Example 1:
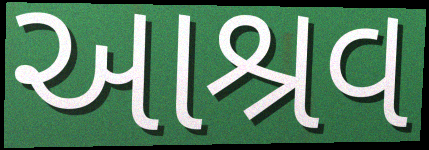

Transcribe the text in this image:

આશ્રવ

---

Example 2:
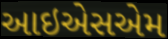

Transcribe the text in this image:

આઇએસએમ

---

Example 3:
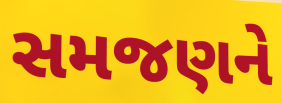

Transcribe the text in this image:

સમજણને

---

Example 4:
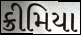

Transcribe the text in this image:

ક્રીમિયા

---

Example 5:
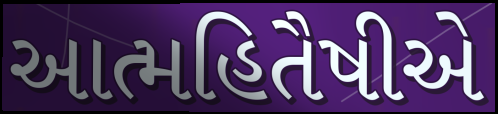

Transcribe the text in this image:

આત્મહિતૈષીએ